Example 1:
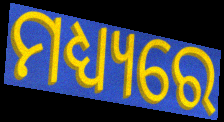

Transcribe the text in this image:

ମଧ୍ୟ୍ୟରେ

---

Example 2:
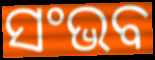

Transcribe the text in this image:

ସଂଭବ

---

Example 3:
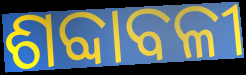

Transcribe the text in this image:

ଶବ୍ଦାବଳୀ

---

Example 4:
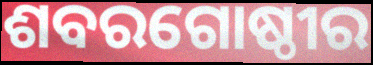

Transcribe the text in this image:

ଶବରଗୋଷ୍ଠୀର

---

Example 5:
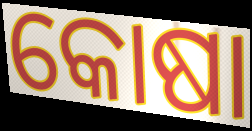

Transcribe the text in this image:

କୋଷା